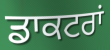
ਡਾਕਟਰਾਂ